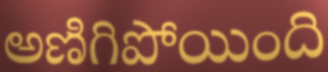
అణిగిపోయింది